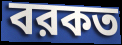
বরকত